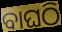
ବାଘଠି